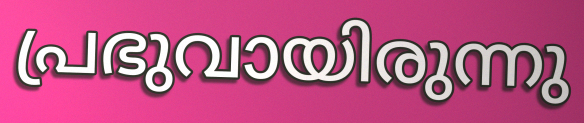
പ്രഭുവായിരുന്നു